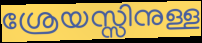
ശ്രേയസ്സിനുള്ള